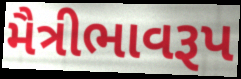
મૈત્રીભાવરૂપ